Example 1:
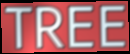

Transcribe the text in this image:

TREE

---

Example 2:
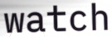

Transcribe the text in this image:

watch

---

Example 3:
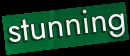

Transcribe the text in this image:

stunning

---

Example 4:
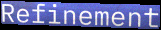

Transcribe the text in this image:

Refinement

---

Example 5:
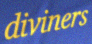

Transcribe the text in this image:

diviners